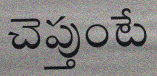
చెప్తుంటే